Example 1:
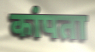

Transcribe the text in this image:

कांपता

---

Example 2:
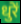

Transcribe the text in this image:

धुरें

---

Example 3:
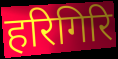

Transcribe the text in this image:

हरिगिरि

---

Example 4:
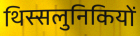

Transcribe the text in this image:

थिस्सलुनिकियों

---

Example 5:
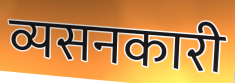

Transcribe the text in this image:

व्यसनकारी